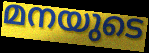
മനയുടെ